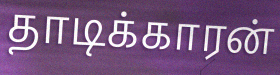
தாடிக்காரன்